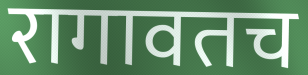
रागावतच